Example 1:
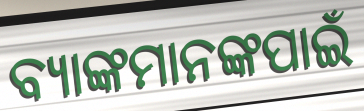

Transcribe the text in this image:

ବ୍ୟାଙ୍କମାନଙ୍କପାଇଁ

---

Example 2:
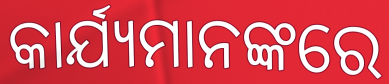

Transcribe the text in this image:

କାର୍ଯ୍ୟମାନଙ୍କରେ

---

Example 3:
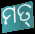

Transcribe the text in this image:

ମତ୍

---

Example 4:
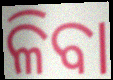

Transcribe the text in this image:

ଳିବା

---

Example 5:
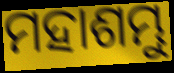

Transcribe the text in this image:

ମହାଶମ୍ଭୁ